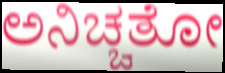
ಅನಿಚ್ಚತೋ